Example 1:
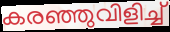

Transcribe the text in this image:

കരഞ്ഞുവിളിച്ച്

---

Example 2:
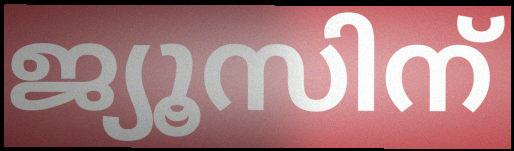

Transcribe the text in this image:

ജ്യൂസിന്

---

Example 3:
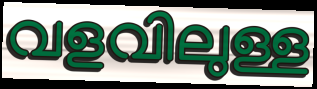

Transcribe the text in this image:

വളവിലുള്ള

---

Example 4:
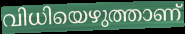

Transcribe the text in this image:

വിധിയെഴുത്താണ്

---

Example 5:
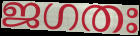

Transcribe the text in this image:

ജഗതഃ